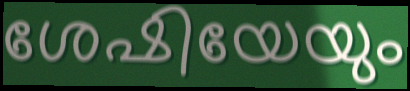
ശേഷിയേയും